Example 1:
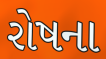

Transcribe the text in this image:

રોષના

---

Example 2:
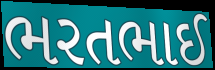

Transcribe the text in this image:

ભરતભાઈ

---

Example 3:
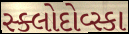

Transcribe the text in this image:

સ્ક્લોદોવ્સ્કા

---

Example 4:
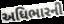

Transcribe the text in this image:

અધિભારની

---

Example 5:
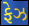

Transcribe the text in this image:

ફેઝ